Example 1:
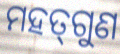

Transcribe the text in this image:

ମହତ୍‍ଗୁଣ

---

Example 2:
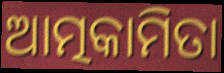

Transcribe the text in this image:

ଆତ୍ମକାମିତା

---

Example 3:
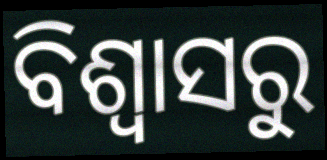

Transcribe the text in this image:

ବିଶ୍ବାସରୁ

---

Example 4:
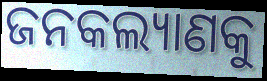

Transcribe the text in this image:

ଜନକଲ୍ୟାଣକୁ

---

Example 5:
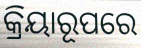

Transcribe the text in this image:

କ୍ରିୟାରୂପରେ